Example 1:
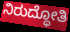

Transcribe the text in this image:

ನಿರುದ್ಧೋತಿ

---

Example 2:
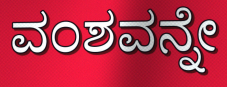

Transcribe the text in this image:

ವಂಶವನ್ನೇ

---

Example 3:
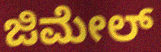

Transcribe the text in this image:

ಜಿಮೇಲ್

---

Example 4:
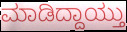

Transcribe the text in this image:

ಮಾಡಿದ್ದಾಯ್ತು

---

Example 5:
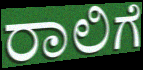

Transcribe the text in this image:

ರಾಲಿಗೆ